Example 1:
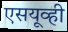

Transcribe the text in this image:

एसयूव्ही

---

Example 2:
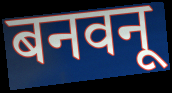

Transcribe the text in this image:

बनवनू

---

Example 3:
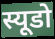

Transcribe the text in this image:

स्यूडो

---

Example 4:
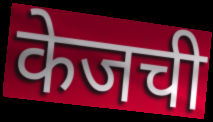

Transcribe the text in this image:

केजची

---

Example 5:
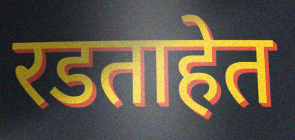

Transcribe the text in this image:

रडताहेत